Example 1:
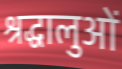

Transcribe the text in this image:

श्रद्धालुओं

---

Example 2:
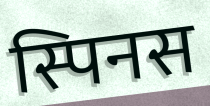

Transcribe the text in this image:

स्पिनस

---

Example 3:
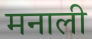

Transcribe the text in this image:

मनाली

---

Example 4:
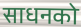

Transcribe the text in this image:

साधनको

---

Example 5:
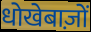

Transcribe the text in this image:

धोखेबाज़ों